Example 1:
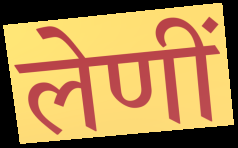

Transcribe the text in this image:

लेणीं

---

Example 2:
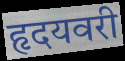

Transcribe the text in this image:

हृदयवरी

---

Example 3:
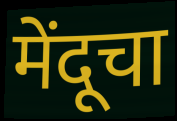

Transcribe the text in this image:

मेंदूचा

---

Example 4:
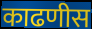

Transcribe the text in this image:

काढणीस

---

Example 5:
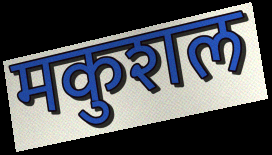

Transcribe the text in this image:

मकुशल